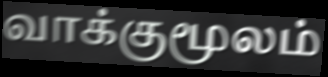
வாக்குமூலம்